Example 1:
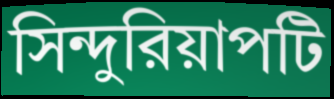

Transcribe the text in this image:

সিন্দুরিয়াপটি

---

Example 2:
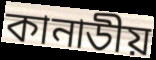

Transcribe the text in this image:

কানাডীয়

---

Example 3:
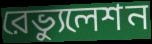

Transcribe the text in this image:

রেভ্যুলেশন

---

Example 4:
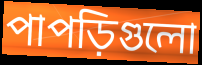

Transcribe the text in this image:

পাপড়িগুলো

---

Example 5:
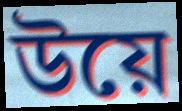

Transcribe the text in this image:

উয়ে